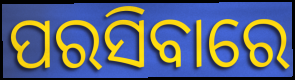
ପରସିବାରେ